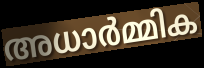
അധാർമ്മിക